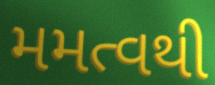
મમત્વથી